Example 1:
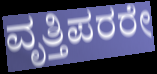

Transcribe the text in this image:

ವೃತ್ತಿಪರರೇ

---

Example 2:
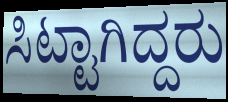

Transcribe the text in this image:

ಸಿಟ್ಟಾಗಿದ್ದರು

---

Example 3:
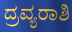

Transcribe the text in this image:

ದ್ರವ್ಯರಾಶಿ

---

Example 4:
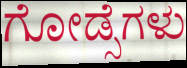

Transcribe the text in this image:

ಗೋಡ್ಸೆಗಳು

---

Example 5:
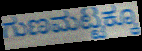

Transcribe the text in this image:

ಗುಣಮಟ್ಟಕ್ಕೂ